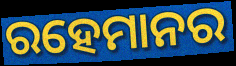
ରହେମାନର